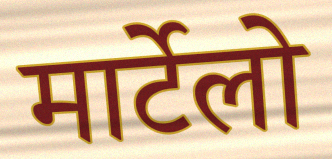
मार्टेलो